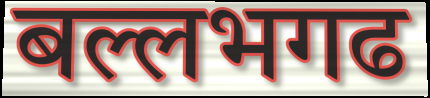
बल्लभगढ